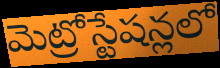
మెట్రోస్టేషన్లలో